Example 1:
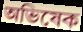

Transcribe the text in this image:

অভিষেক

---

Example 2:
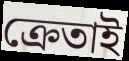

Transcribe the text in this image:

ক্ৰেতাই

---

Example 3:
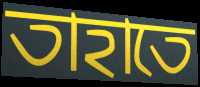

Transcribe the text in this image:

তাহাতে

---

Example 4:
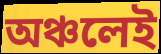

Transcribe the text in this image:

অঞ্চলেই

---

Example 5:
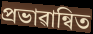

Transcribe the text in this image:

প্ৰভাৱান্বিত